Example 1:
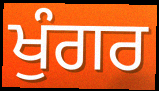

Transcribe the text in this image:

ਖੁੰਗਰ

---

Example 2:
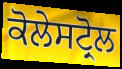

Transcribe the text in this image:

ਕੋਲੇਸਟ੍ਰੋਲ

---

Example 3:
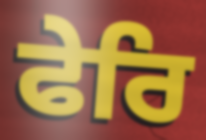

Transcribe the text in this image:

ਫੇਰਿ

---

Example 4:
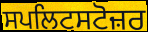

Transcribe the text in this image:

ਸਪਲਿਟਸਟੋਜ਼ਰ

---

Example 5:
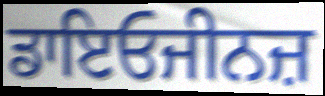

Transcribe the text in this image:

ਡਾਇਓਜੀਨਜ਼